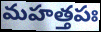
మహత్తపః